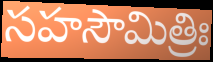
సహసౌమిత్రిః